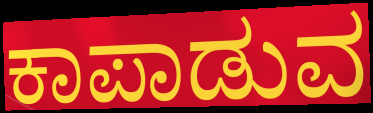
ಕಾಪಾಡುವ